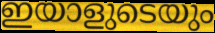
ഇയാളുടെയും